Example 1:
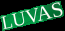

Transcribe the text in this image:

LUVAS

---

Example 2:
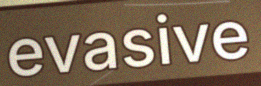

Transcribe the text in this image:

evasive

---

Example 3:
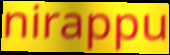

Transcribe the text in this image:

nirappu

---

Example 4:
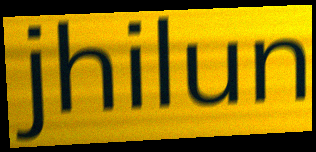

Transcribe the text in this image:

jhilun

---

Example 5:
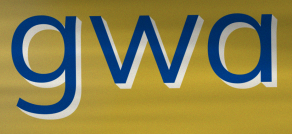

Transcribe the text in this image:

gwa